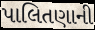
પાલિતણાની